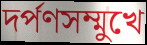
দর্পণসম্মুখে